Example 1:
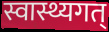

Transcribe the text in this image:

स्वास्थ्यगत्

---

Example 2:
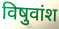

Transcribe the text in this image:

विषुवांश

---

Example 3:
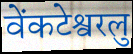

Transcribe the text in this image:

वेंकटेश्वरलु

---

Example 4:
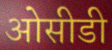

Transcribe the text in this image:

ओसीडी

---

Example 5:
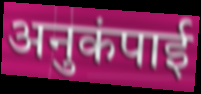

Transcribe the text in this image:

अनुकंपाई